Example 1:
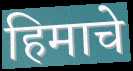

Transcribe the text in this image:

हिमाचे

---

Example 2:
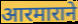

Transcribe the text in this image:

आरमाराने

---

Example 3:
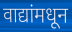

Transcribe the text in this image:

वाद्यांमधून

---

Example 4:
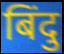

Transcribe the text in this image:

बिंदु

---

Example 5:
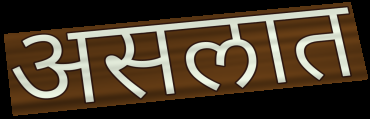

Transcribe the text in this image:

असलात